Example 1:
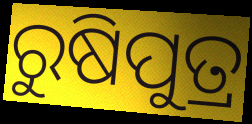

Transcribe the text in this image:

ରୁଷିପୁତ୍ର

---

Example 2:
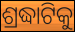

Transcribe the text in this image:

ଶ୍ରଦ୍ଧାଟିକୁ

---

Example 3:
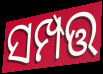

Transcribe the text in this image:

ସମ୍ପତ୍ତ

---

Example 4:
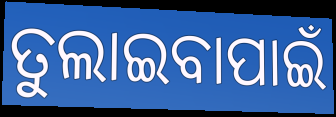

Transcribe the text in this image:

ତୁଲାଇବାପାଇଁ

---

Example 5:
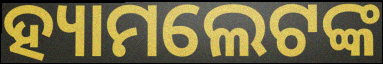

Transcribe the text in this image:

ହ୍ୟାମଲେଟଙ୍କ